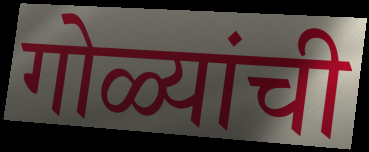
गोळ्यांची